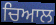
ਚਿਆਲ